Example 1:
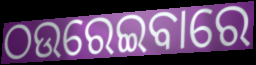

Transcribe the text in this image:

ଠଉରେଇବାରେ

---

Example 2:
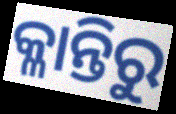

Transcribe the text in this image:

କ୍ଳାନ୍ତିରୁ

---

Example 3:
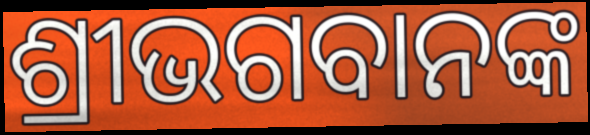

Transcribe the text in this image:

ଶ୍ରୀଭଗବାନଙ୍କ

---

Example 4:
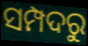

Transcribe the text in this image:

ସମ୍ପଦରୁ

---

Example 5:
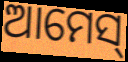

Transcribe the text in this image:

ଆମେସ୍